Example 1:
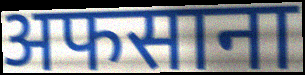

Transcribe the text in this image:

अफसाना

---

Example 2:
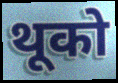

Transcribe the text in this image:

थूको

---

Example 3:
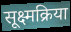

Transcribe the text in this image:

सूक्ष्मक्रिया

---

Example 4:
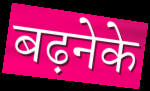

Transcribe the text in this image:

बढ़नेके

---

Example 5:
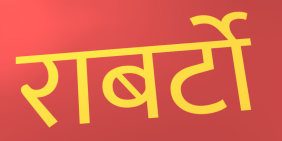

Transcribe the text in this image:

राबर्टो